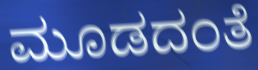
ಮೂಡದಂತೆ